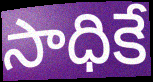
సాధికే